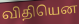
விதியென